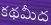
కథమీద